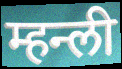
म्हन्ली